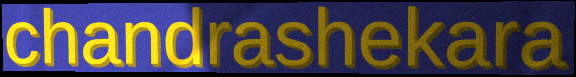
chandrashekara